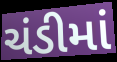
ચંડીમાં